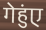
गेहुंए